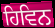
ਹਿਵਿਨ